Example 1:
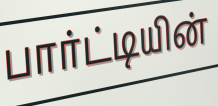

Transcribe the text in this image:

பார்ட்டியின்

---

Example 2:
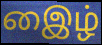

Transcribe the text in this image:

இைழ்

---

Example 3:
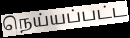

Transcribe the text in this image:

நெய்யப்பட்ட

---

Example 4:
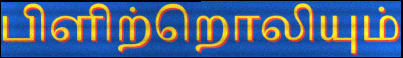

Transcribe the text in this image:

பிளிற்றொலியும்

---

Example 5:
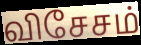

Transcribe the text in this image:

விசேசம்